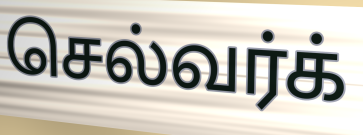
செல்வர்க்